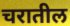
चरातील